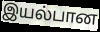
இயல்பான